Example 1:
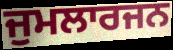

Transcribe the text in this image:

ਜੁਮਲਾਰਜਨ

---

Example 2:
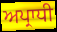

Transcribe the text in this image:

ਅਪ੍ਰਾਧੀ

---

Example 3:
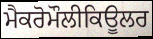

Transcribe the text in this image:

ਮੈਕਰੋਮੌਲੀਕਿਊਲਰ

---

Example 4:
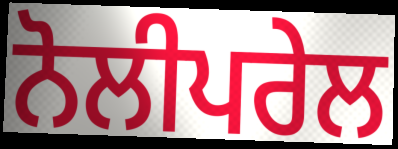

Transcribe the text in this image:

ਨੋਲੀਪਰੇਲ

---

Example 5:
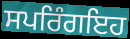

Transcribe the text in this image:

ਸਪਰਿੰਗਇਹ